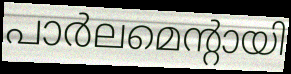
പാർലമെന്റായി